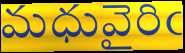
మధువైరిఁ